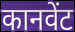
कानवेंट